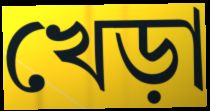
খেড়া